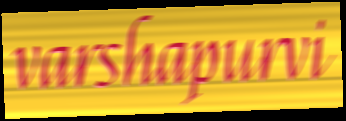
varshapurvi